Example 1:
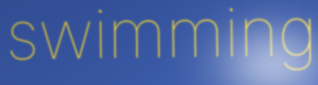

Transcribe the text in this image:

swimming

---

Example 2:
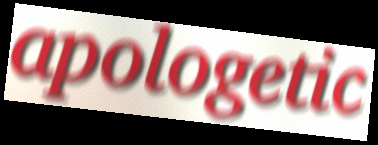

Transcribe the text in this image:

apologetic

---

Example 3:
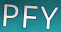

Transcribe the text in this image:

PFY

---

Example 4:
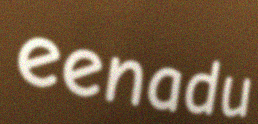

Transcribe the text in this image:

eenadu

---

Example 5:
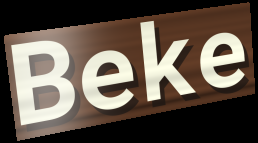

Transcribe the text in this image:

Beke